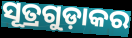
ସୂତ୍ରଗୁଡ଼ାକର